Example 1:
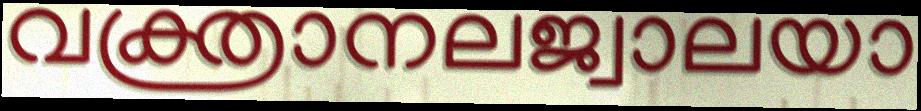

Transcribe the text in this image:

വക്ത്രാനലജ്വാലയാ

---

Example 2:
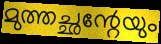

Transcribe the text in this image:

മുത്തച്ഛന്റേയും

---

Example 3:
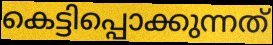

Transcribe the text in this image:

കെട്ടിപ്പൊക്കുന്നത്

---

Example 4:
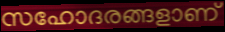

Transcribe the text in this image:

സഹോദരങ്ങളാണ്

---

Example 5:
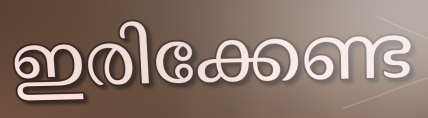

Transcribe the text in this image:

ഇരിക്കേണ്ട